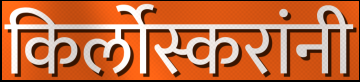
किर्लोस्करांनी